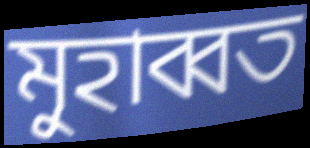
মুহাব্বত